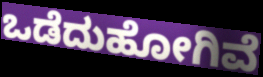
ಒಡೆದುಹೋಗಿವೆ